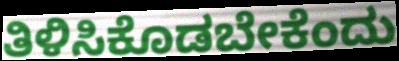
ತಿಳಿಸಿಕೊಡಬೇಕೆಂದು